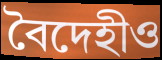
বৈদেহীও